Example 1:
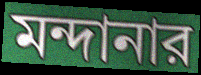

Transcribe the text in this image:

মন্দানার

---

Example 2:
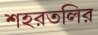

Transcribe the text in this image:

শহরতলির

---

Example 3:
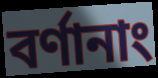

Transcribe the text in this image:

বর্ণানাং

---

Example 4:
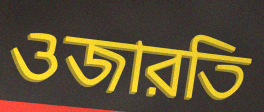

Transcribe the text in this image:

ওজারতি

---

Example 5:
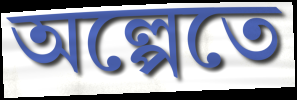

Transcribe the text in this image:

অল্পেতে